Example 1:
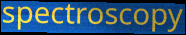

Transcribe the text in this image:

spectroscopy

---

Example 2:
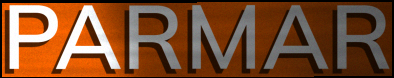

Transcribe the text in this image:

PARMAR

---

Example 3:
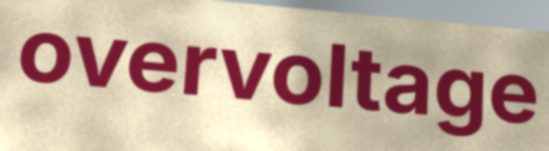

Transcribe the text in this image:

overvoltage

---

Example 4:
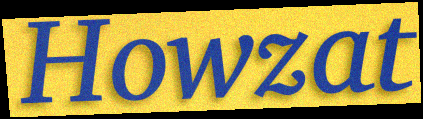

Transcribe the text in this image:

Howzat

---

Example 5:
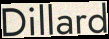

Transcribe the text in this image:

Dillard